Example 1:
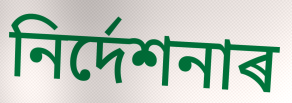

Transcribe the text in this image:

নিৰ্দেশনাৰ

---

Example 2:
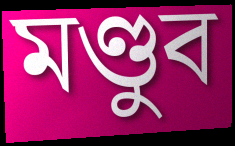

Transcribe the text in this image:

মণ্ডুব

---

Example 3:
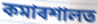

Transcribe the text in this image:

কমাৰশালত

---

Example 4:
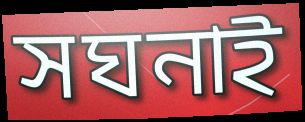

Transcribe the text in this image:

সঘনাই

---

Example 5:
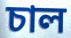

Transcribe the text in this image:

চাল